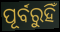
ପୂର୍ବରୁହିଁ